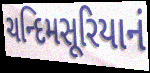
ચન્દિમસૂરિયાનં